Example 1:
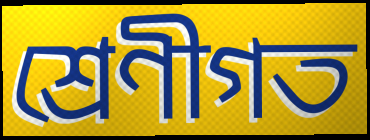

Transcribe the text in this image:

শ্রেণীগত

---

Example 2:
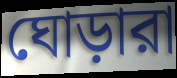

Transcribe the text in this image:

ঘোড়ারা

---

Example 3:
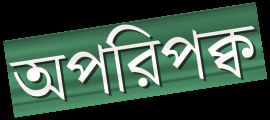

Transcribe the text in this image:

অপরিপক্ব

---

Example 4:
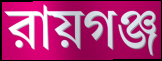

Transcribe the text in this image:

রায়গঞ্জ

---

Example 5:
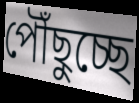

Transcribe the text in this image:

পৌঁছুচ্ছে